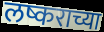
लष्कराच्या